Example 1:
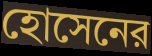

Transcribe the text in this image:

হোসেনের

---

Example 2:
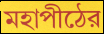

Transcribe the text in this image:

মহাপীঠের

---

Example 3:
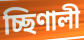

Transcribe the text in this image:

চ্ছিণালী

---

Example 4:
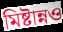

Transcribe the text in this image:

মিষ্টান্নও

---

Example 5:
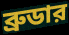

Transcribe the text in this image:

ব্রুডার